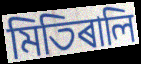
মিতিৰালি